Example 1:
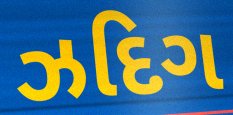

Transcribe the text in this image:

ઝદિગ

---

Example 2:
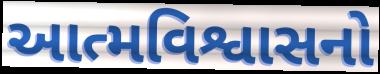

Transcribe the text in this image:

આત્મવિશ્વાસનો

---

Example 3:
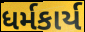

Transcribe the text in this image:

ધર્મકાર્ય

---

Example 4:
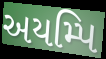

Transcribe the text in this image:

અયમ્પિ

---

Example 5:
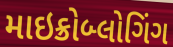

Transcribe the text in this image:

માઇક્રોબ્લોગિંગ